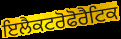
ਇਲੈਕਟਰੋਫੋਰੈਟਿਕ